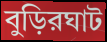
বুড়িরঘাট